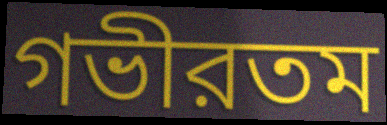
গভীরতম